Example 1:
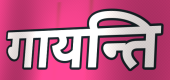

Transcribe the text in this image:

गायन्ति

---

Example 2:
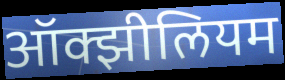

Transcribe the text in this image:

ऑक्झीलियम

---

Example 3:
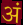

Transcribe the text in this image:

अं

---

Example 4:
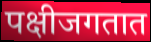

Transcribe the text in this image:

पक्षीजगतात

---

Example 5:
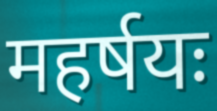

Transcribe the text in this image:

महर्षयः